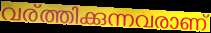
വര്ത്തിക്കുന്നവരാണ്